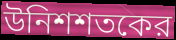
উনিশশতকের